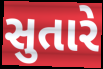
સુતારે